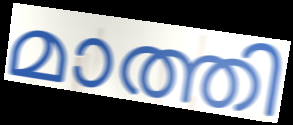
മാത്തി